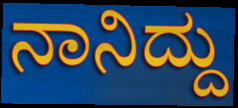
ನಾನಿದ್ದು